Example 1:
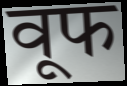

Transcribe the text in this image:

वूफ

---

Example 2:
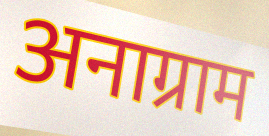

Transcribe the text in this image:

अनाग्राम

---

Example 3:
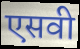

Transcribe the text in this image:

एसवी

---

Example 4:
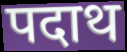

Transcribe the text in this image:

पदाथ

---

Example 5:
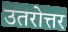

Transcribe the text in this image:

उतरोत्तर